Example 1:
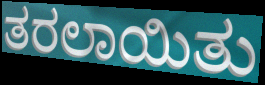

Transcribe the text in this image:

ತರಲಾಯಿತು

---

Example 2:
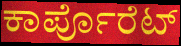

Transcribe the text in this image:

ಕಾರ್ಪೊರೆಟ್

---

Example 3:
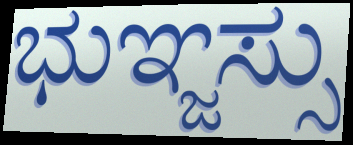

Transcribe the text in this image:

ಭುಞ್ಜಸ್ಸು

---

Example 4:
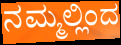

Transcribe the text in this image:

ನಮ್ಮಲ್ಲಿಂದ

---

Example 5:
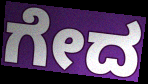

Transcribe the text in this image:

ಗೇದ